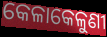
କେଳାକେଳୁଣୀ